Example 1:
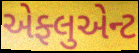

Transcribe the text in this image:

એફ્લુએન્ટ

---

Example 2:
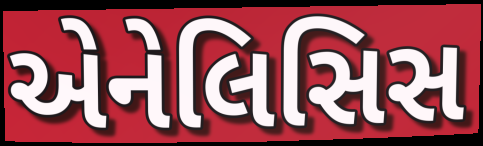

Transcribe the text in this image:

એનેલિસિસ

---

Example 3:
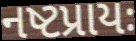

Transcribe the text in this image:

નષ્ટપ્રાયઃ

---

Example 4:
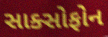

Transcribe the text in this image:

સાક્સોફોન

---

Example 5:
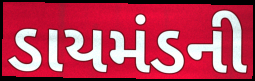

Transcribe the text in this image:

ડાયમંડની